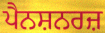
ਪੈਨਸ਼ਨਰਜ਼